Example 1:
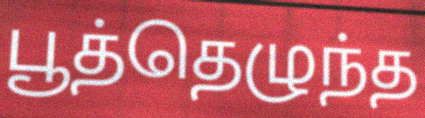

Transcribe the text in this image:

பூத்தெழுந்த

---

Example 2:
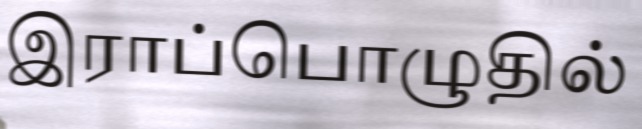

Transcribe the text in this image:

இராப்பொழுதில்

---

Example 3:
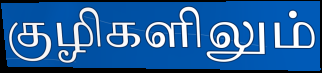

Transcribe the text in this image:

குழிகளிலும்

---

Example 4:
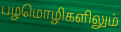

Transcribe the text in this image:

பழமொழிகளிலும்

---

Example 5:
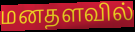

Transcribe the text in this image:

மனதளவில்